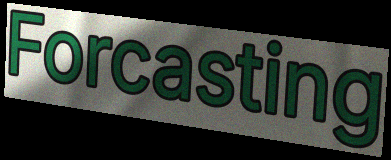
Forcasting